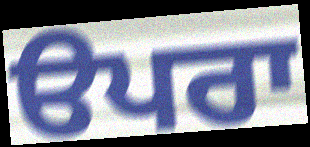
ੳਪਰਾ